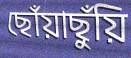
ছোঁয়াছুঁয়ি